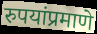
रुपयांप्रमाणे